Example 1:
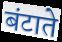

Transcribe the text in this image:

बंटाते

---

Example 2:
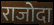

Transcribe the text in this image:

राजोदा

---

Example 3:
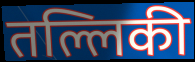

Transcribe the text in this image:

तल्लिकी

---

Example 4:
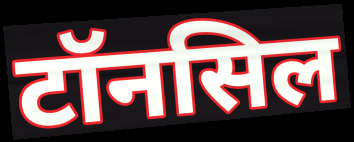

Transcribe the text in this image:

टॉनसिल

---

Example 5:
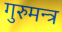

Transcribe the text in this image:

गुरुमन्त्र